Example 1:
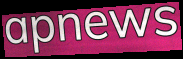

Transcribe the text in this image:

apnews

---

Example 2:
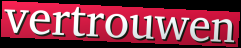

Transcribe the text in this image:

vertrouwen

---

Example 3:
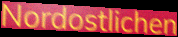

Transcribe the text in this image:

Nordostlichen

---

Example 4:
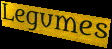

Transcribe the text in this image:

Legumes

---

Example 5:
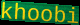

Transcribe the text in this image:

khoobi